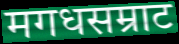
मगधसम्राट